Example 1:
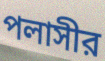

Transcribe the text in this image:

পলাসীর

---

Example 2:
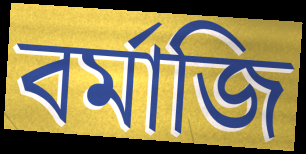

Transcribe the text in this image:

বর্মাজি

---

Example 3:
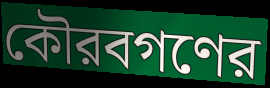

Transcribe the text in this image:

কৌরবগণের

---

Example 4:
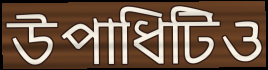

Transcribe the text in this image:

উপাধিটিও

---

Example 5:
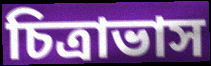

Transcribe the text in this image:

চিত্রাভাস